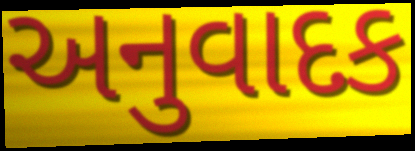
અનુવાદક